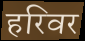
हरिवर